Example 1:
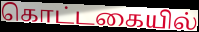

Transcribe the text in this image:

கொட்டகையில்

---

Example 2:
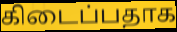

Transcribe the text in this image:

கிடைப்பதாக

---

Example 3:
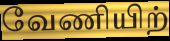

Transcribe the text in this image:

வேணியிற்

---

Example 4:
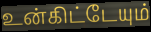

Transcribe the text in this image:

உன்கிட்டேயும்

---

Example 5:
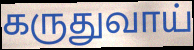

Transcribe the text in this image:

கருதுவாய்